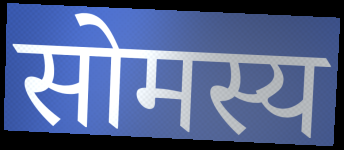
सोमस्य